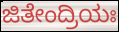
ಜಿತೇಂದ್ರಿಯಃ